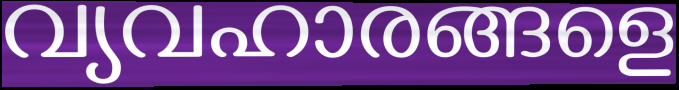
വ്യവഹാരങ്ങളെ